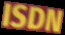
ISDN